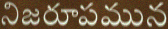
నిజరూపమున